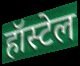
हॉस्टेल